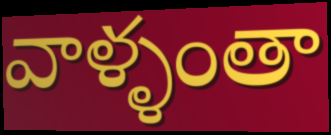
వాళ్ళంతా